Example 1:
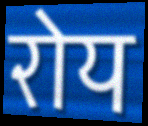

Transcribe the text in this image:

रोय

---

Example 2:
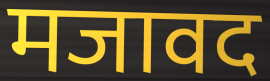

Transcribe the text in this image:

मजावद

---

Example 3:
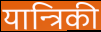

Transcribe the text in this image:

यान्त्रिकी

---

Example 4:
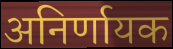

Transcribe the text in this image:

अनिर्णायक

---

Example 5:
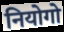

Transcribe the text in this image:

नियोगो